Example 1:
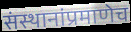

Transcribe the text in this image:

संस्थानांप्रमाणेच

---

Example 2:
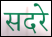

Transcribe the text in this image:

सदरे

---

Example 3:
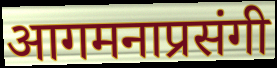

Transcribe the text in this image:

आगमनाप्रसंगी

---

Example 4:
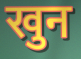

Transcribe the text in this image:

खुन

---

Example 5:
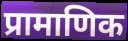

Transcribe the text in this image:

प्रामाणिक